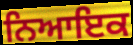
ਨਿਆਇਕ